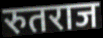
रुतराज